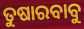
ତୁଷାରବାବୁ